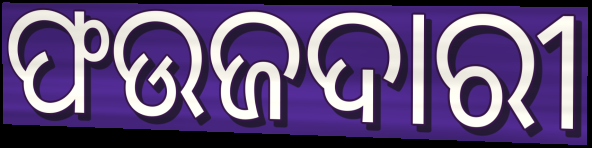
ଫଉଜଦାରୀ